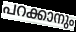
പറക്കാനും